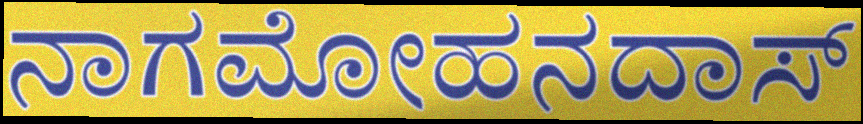
ನಾಗಮೋಹನದಾಸ್